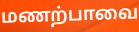
மணற்பாவை